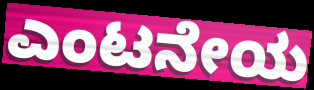
ಎಂಟನೇಯ